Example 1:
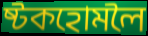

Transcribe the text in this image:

ষ্টকহোমলৈ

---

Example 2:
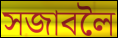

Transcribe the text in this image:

সজাবলৈ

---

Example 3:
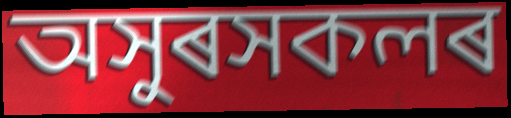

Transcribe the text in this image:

অসুৰসকলৰ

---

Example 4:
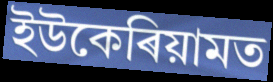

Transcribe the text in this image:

ইউকেৰিয়ামত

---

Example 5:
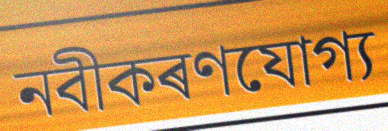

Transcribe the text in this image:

নবীকৰণযোগ্য